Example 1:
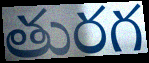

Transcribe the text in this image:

తురగ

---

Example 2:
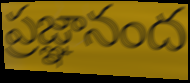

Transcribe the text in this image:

ప్రజ్ఞానంద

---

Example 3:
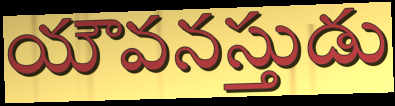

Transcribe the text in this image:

యౌవనస్తుడు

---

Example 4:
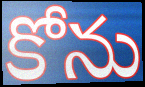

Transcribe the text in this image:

కోను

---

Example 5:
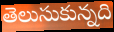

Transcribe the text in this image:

తెలుసుకున్నది